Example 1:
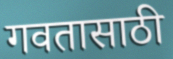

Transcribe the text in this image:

गवतासाठी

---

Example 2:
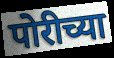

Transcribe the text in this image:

पोरीच्या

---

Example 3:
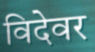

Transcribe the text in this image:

विदेवर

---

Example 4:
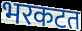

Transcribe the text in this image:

भरकटत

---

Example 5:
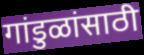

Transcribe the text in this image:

गांडुळांसाठी